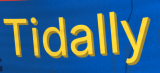
Tidally